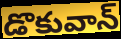
డొకువాన్